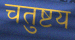
चतुष्टय